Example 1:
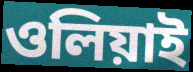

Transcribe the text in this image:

ওলিয়াই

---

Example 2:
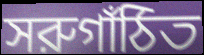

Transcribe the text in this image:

সৰুগাঁঠিত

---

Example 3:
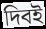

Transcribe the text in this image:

দিবই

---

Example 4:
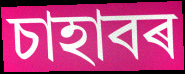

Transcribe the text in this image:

চাহাবৰ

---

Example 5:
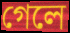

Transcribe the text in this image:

গেলে